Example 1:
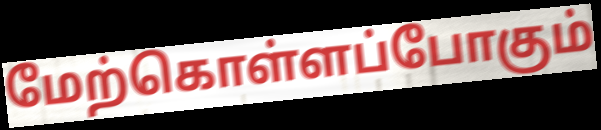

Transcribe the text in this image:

மேற்கொள்ளப்போகும்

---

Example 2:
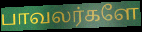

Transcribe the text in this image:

பாவலர்களே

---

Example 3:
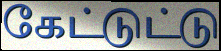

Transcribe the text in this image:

கேட்டுட்டு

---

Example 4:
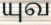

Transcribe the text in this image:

யுவ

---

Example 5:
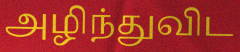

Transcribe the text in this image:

அழிந்துவிட